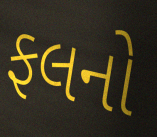
ફલનો